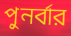
পুনর্বার